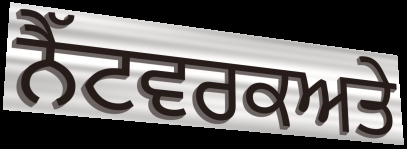
ਨੈੱਟਵਰਕਅਤੇ